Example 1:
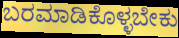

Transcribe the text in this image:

ಬರಮಾಡಿಕೊಳ್ಳಬೇಕು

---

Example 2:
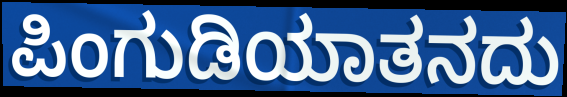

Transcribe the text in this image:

ಪಿಂಗುಡಿಯಾತನದು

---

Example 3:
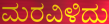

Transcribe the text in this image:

ಮರವಿಳಿದು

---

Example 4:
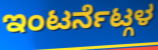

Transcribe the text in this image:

ಇಂಟರ್ನೆಟ್ಗಳ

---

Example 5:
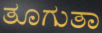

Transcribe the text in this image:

ತೂಗುತಾ